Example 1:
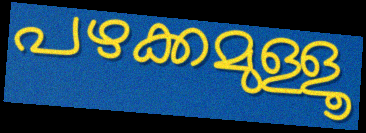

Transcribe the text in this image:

പഴക്കമുള്ളൂ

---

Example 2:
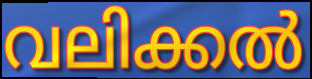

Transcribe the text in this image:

വലിക്കൽ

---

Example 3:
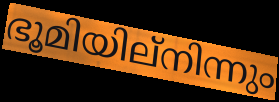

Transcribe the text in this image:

ഭൂമിയില്നിന്നും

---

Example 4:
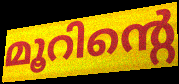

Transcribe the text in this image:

മൂറിന്റെ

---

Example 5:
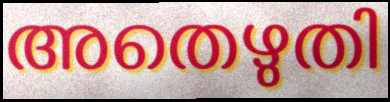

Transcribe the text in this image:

അതെഴുതി